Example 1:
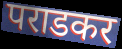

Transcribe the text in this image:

पराडकर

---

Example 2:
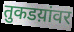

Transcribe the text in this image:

तुकडय़ांवर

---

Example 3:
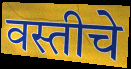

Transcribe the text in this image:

वस्तीचे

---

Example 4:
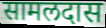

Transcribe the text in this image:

सामलदास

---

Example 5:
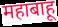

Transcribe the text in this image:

महाबाहू